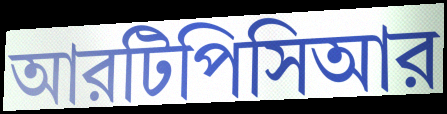
আরটিপিসিআর